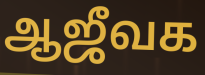
ஆஜீவக